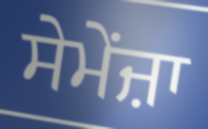
ਸੇਮੇਂਜ਼ਾ